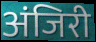
अंजिरी